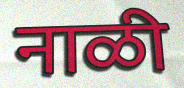
नाळी